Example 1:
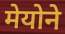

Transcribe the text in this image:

मेयोने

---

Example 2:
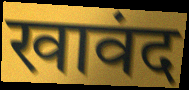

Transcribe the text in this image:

खावंद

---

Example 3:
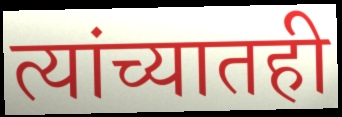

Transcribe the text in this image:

त्यांच्यातही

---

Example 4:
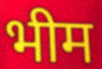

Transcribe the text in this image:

भीम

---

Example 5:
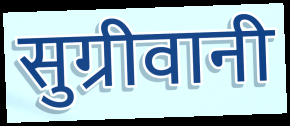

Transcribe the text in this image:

सुग्रीवानी